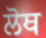
ਲੋਥ